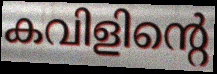
കവിളിന്റെ